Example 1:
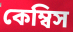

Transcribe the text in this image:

কেম্বিস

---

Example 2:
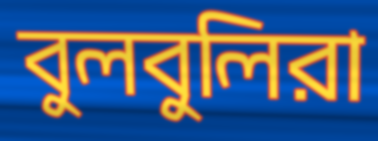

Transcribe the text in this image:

বুলবুলিরা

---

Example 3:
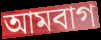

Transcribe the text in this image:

আমবাগ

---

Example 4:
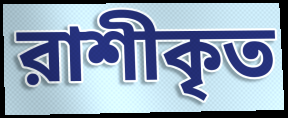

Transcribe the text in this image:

রাশীকৃত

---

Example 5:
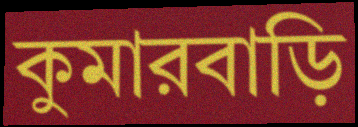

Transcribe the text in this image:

কুমারবাড়ি